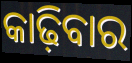
କାଢ଼ିବାର